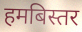
हमबिस्तर